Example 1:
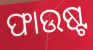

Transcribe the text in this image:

ଫାଉଷ୍ଟ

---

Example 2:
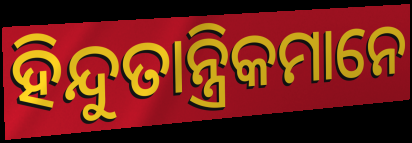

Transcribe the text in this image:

ହିନ୍ଦୁତାନ୍ତ୍ରିକମାନେ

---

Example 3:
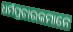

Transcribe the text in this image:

ଧର୍ମପ୍ରଚାରକମାନେ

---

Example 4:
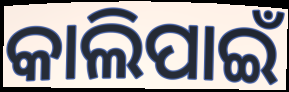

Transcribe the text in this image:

କାଲିପାଇଁ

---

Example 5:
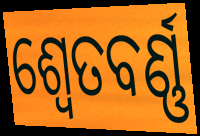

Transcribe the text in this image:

ଶ୍ୱେତବର୍ଣ୍ଣ